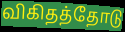
விகிதத்தோடு